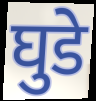
घुडे